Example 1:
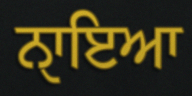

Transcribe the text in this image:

ਨੑਾਇਆ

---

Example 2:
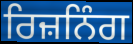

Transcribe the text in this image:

ਰਿਜ਼ਨਿੰਗ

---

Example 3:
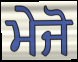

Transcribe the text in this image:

ਮੇਜੋ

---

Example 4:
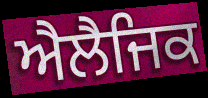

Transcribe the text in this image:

ਐਲੈਜਿਕ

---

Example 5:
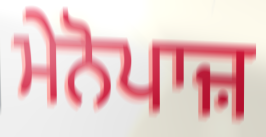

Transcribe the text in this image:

ਮੇਨੋਪਾਜ਼